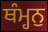
ਥੰਮ੍ਹ੍ਹਨੁ